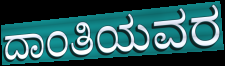
ದಾಂತಿಯವರ